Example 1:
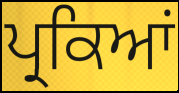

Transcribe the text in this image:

ਪ੍ਰਕਿਆਂ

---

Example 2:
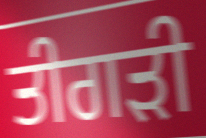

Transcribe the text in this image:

ਤੀਗੜੀ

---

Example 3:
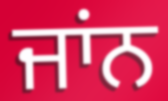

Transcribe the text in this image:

ਜਾਂਨ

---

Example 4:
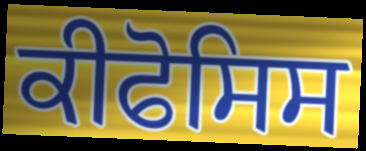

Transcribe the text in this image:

ਕੀਫੋਸਿਸ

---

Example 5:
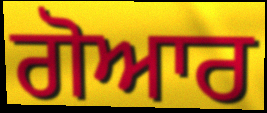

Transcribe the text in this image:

ਗੋਆਰ